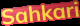
Sahkari